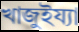
খাজুইয্যা